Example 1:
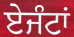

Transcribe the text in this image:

ਏਜੰਟਾਂ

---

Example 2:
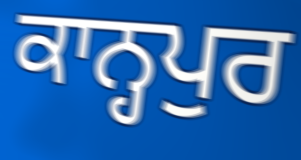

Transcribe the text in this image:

ਕਾਨ੍ਹਪੁਰ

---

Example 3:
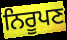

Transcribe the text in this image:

ਨਿਰੂਪਣ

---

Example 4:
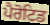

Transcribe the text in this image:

ਪੈਰੋਟਿਡ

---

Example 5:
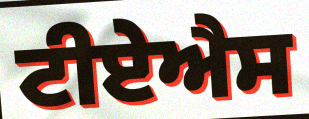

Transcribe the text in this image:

ਟੀਏਐਸ